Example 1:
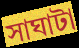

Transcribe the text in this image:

সাঘাটা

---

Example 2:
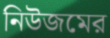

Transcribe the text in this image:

নিউজমের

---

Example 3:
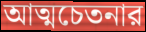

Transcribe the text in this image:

আত্মচেতনার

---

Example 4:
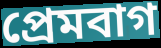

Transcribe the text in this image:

প্রেমবাগ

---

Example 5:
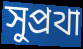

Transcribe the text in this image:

সুপ্রথা